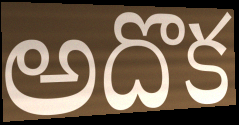
అదొక